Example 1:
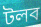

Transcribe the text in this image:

টলব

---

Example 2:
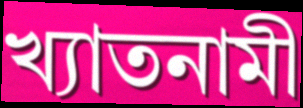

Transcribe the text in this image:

খ্যাতনামী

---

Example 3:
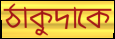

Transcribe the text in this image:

ঠাকুদাকে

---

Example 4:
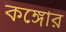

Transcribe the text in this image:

কঙ্গোর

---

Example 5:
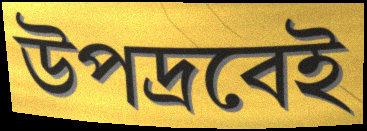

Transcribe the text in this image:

উপদ্রবেই